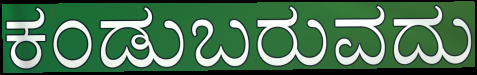
ಕಂಡುಬರುವದು